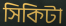
সিকিটা